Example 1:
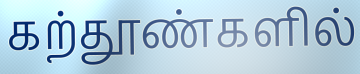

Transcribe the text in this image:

கற்தூண்களில்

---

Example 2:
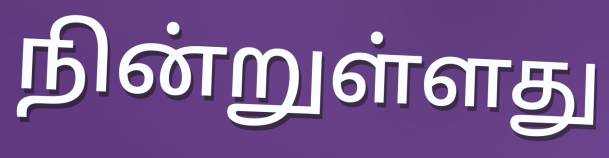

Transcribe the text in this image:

நின்றுள்ளது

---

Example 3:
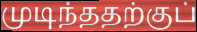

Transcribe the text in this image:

முடிந்ததற்குப்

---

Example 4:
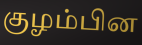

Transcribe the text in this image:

குழம்பின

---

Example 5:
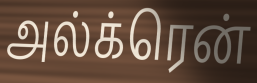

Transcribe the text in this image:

அல்க்ரென்